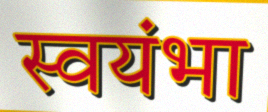
स्वयंभा